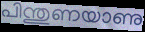
പിന്തുണയാണു